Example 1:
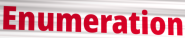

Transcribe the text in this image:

Enumeration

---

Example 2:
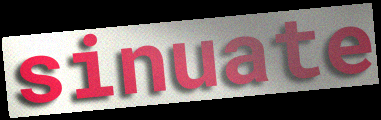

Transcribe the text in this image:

sinuate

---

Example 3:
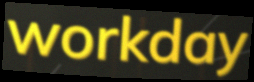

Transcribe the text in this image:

workday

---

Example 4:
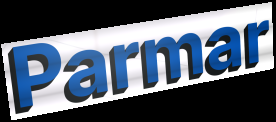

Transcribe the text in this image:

Parmar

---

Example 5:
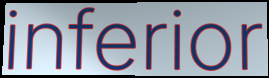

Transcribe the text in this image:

inferior